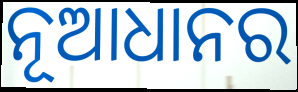
ନୂଆଧାନର